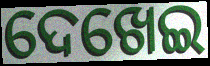
ଦେଖେଇ